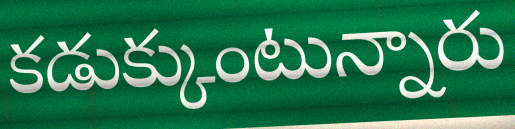
కడుక్కుంటున్నారు